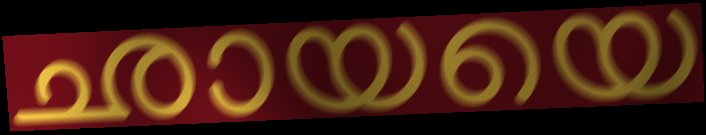
ഛായയെ